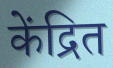
केंद्रित